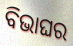
ବିଭାଘର